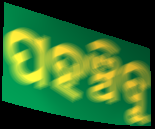
ପହଞ୍ଚିବୁ